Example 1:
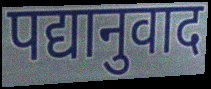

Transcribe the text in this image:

पद्यानुवाद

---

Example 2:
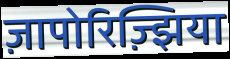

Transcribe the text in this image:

ज़ापोरिज़्झिया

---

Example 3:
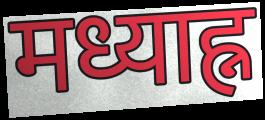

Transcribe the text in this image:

मध्याह्न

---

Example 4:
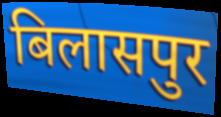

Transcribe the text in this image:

बिलासपुर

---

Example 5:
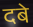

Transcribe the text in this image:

दबे